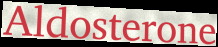
Aldosterone